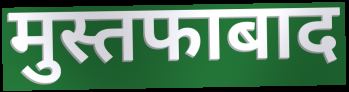
मुस्तफाबाद